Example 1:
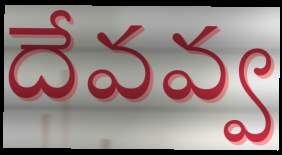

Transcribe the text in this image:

దేవవ్వ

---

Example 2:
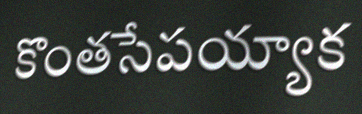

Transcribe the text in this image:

కొంతసేపయ్యాక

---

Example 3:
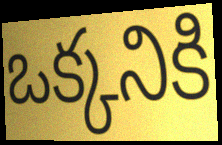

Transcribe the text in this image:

ఒక్కనికి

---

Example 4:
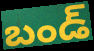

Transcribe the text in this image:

బండ్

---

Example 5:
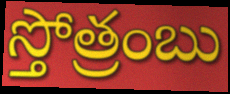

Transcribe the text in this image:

స్తోత్రంబు